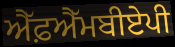
ਐੱਫ਼ਐੱਮਬੀਏਪੀ